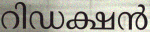
റിഡക്ഷൻ